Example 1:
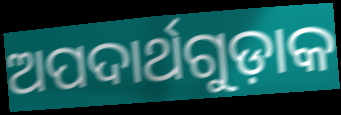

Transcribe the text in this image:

ଅପଦାର୍ଥଗୁଡ଼ାକ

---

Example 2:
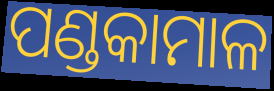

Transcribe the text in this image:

ପଣ୍ଡକାମାଳ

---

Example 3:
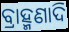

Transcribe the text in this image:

ବ୍ରାହ୍ମଣାଦି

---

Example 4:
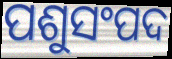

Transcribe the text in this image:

ପଶୁସଂପଦ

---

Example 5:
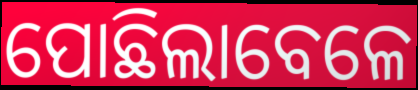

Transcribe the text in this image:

ପୋଛିଲାବେଳେ